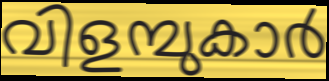
വിളമ്പുകാർ